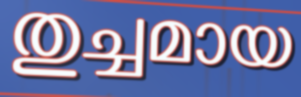
തുച്ചമായ